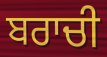
ਬਰਾਚੀ